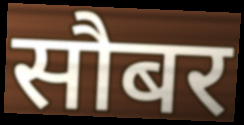
सौबर